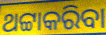
ଥଟ୍ଟାକରିବା